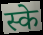
स्के